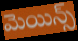
మెయిన్స్